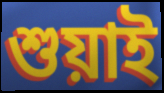
শুয়াই